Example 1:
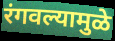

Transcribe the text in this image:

रंगवल्यामुळे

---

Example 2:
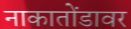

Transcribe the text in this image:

नाकातोंडावर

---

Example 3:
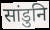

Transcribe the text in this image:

सांडुनि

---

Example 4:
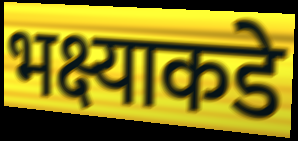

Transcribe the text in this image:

भक्ष्याकडे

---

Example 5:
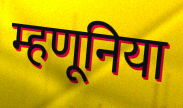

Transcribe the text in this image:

म्हणूनिया